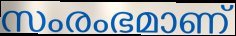
സംരംഭമാണ്